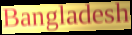
Bangladesh